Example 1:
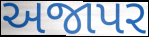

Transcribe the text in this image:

અજાપર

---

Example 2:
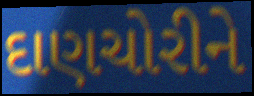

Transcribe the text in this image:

દાણચોરીને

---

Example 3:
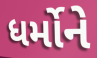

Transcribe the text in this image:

ધર્મોને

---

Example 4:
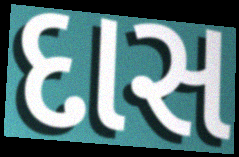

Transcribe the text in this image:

દાસ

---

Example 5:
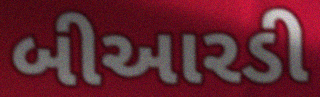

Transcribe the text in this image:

બીઆરડી